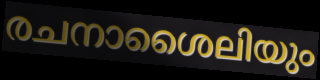
രചനാശൈലിയും